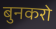
बुनकरो